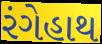
રંગેહાથ